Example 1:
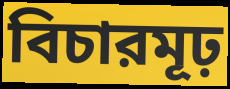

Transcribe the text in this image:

বিচারমূঢ়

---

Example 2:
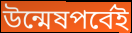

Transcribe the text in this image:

উন্মেষপর্বেই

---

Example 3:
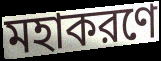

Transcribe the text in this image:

মহাকরণে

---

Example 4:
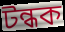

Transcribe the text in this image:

টন্ধক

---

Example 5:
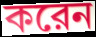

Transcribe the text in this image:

করেন